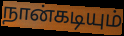
நான்கடியும்